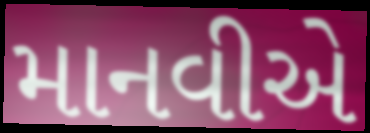
માનવીએ